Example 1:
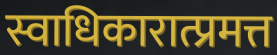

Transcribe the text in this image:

स्वाधिकारात्प्रमत्त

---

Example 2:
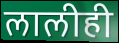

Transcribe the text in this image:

लालीही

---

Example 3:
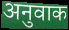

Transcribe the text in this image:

अनुवाक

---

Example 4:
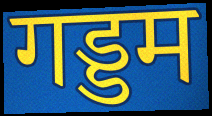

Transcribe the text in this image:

गड्डम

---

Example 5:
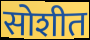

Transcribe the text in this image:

सोशीत